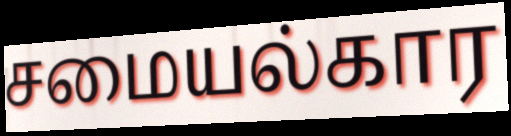
சமையல்கார